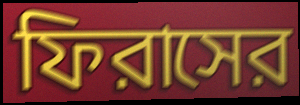
ফিরাসের